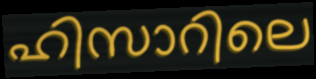
ഹിസാറിലെ